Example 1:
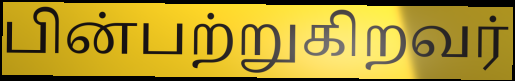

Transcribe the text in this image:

பின்பற்றுகிறவர்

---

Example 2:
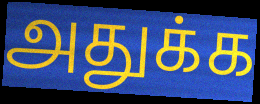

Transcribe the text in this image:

அதுக்க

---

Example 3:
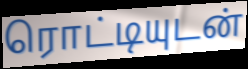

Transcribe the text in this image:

ரொட்டியுடன்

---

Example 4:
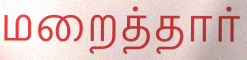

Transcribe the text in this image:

மறைத்தார்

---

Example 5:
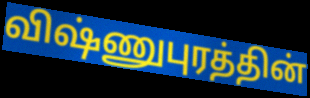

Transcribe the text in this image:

விஷ்ணுபுரத்தின்